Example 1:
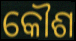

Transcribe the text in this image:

କୌଶ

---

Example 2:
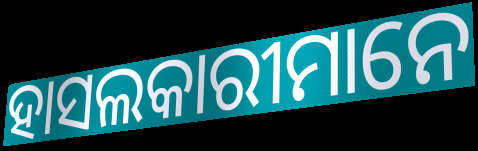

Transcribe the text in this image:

ହାସଲକାରୀମାନେ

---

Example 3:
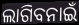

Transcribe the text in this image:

ଲାଗିବନାଇଁ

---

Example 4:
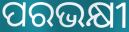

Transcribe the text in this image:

ପରଭକ୍ଷୀ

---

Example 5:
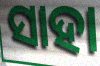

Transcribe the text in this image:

ସାହା